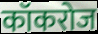
कॉकरोज